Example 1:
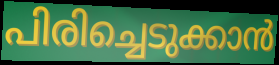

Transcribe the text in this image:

പിരിച്ചെടുക്കാൻ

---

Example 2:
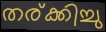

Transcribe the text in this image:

തര്ക്കിച്ചു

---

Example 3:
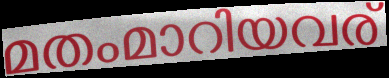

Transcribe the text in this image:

മതംമാറിയവര്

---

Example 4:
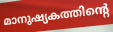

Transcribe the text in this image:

മാനുഷ്യകത്തിന്റെ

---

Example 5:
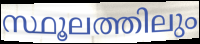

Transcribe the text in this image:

സ്ഥൂലത്തിലും